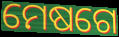
ମେଷଗେ